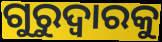
ଗୁରୁଦ୍ୱାରକୁ